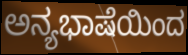
ಅನ್ಯಭಾಷೆಯಿಂದ